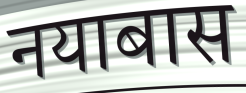
नयाबास